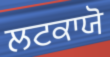
ਲਟਕਾਯੋ